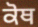
ਕੋਥ